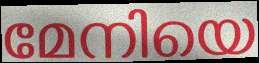
മേനിയെ